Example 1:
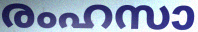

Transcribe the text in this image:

രംഹസാ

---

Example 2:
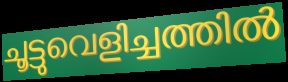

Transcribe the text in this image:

ചൂട്ടുവെളിച്ചത്തിൽ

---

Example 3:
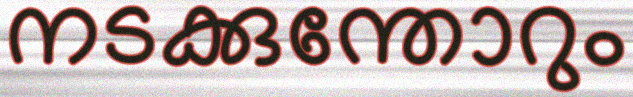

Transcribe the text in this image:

നടക്കുന്തോറും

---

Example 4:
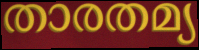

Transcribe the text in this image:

താരതമ്യ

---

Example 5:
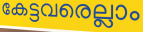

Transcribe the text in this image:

കേട്ടവരെല്ലാം